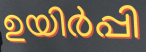
ഉയിർപ്പി